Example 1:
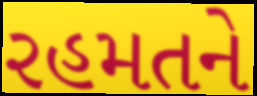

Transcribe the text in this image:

રહમતને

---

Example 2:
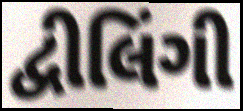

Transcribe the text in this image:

દ્વીલિંગી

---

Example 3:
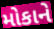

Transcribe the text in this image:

મોકાને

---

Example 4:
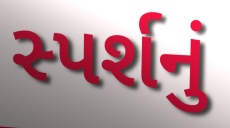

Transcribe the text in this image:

સ્પર્શનું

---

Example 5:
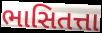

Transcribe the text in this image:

ભાસિતત્તા